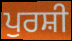
ਪੁਰਸ਼ੀ